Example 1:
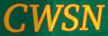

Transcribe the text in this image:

CWSN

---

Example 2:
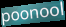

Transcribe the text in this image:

poonool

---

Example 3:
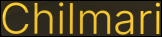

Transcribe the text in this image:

Chilmari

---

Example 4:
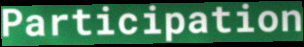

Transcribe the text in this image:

Participation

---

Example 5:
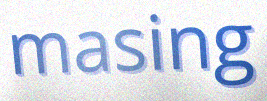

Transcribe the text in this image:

masing